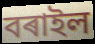
বৰাইল